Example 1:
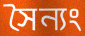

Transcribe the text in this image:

সৈন্যং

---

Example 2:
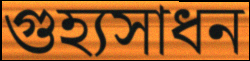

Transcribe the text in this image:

গুহ্যসাধন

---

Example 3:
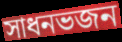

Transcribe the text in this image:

সাধনভজন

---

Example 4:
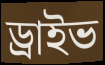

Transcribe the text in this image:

ড্রাইভ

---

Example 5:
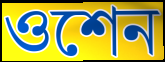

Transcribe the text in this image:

ওশেন